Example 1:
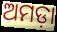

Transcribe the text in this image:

ଅମଡ଼ା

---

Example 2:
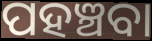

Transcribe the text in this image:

ପହଞ୍ଚବା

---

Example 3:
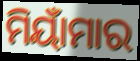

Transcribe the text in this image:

ମିୟାଁମାର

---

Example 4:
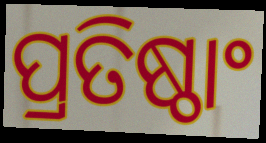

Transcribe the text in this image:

ପ୍ରତିଷ୍ଠାଂ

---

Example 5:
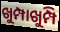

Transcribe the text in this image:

ଖୁମ୍ପାଖୁମ୍ପି